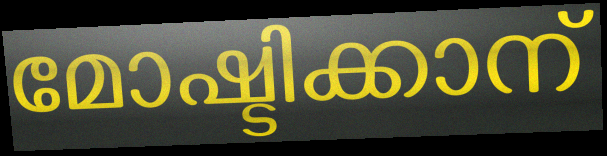
മോഷ്ടിക്കാന്